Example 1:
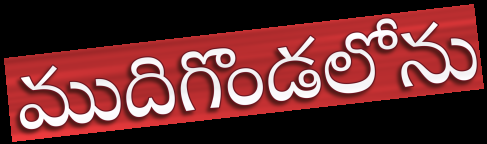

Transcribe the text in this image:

ముదిగొండలోను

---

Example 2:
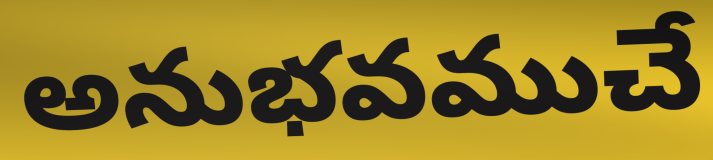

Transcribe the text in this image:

అనుభవముచే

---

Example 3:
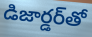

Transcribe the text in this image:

డిజార్డర్‌తో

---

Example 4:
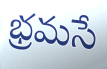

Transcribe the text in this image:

భ్రమసే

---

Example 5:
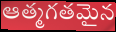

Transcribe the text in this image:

ఆత్మగతమైన